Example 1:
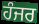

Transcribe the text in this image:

ਹੰਜਰ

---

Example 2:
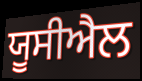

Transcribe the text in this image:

ਯੂਸੀਐਲ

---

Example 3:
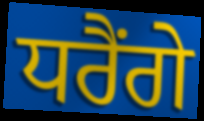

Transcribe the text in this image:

ਧਰੈਂਗੇ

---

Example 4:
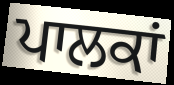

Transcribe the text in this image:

ਪਾਲਕਾਂ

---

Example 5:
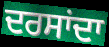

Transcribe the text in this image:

ਦਰਸਾਂਦਾ